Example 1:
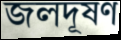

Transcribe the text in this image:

জলদূষণ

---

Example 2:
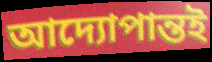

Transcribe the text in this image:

আদ্যোপান্তই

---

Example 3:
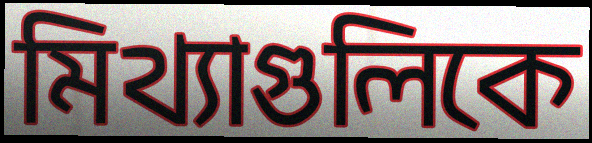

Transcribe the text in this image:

মিথ্যাগুলিকে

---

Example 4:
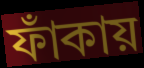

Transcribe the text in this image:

ফাঁকায়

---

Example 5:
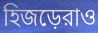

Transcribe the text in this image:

হিজড়েরাও